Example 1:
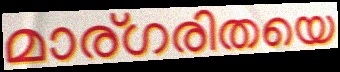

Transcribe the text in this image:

മാര്ഗരിതയെ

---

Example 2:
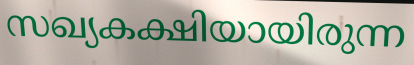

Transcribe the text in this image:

സഖ്യകക്ഷിയായിരുന്ന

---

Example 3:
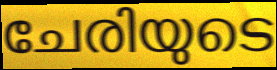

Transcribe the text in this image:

ചേരിയുടെ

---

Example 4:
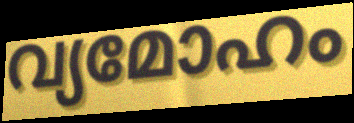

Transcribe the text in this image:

വ്യമോഹം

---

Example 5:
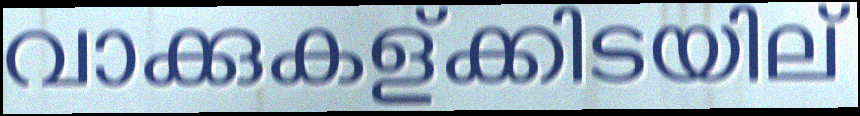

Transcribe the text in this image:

വാക്കുകള്ക്കിടയില്